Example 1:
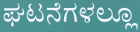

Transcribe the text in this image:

ಘಟನೆಗಳಲ್ಲೂ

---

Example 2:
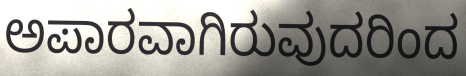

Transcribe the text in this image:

ಅಪಾರವಾಗಿರುವುದರಿಂದ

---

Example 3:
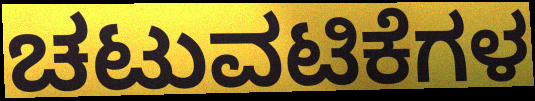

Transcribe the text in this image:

ಚಟುವಟಿಕೆಗಳ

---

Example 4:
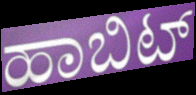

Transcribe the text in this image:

ಹಾಬಿಟ್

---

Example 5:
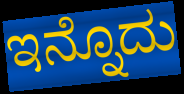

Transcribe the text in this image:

ಇನ್ನೊದು